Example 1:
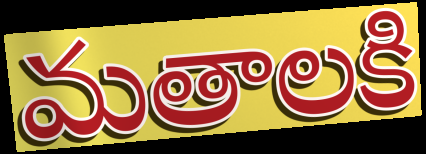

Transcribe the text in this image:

మతాలకి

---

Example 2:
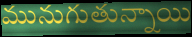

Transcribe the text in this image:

మునుగుతున్నాయి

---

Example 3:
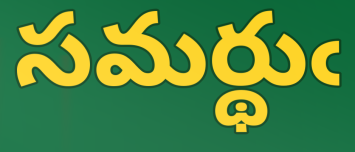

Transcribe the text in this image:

సమర్థుఁ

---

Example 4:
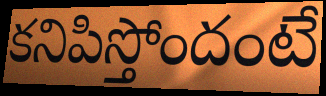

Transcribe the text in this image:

కనిపిస్తోందంటే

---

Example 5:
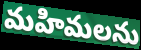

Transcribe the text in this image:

మహిమలను